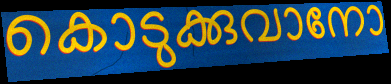
കൊടുക്കുവാനോ